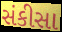
સંકીસા